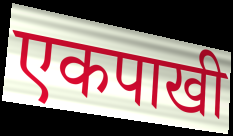
एकपाखी